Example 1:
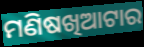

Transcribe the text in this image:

ମଣିଷଖିଆଟାର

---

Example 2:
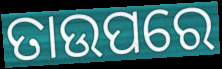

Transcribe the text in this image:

ତାଉପରେ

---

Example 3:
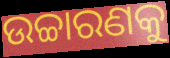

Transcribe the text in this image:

ଉଚ୍ଚାରଣକୁ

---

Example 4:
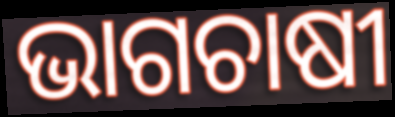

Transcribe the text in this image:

ଭାଗଚାଷୀ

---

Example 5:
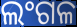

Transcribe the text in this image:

ଲଂଗଳ